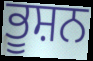
ਭੂਸ਼ਨ